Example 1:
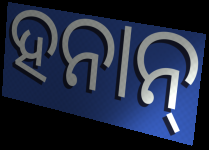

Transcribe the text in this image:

ହନାନ୍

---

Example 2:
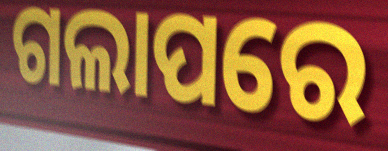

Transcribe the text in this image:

ଗଲାପରେ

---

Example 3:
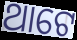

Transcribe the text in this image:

ଥାଟେ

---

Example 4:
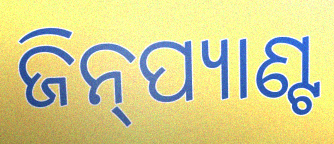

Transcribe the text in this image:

ଜିନ୍‍ପ୍ୟାଣ୍ଟ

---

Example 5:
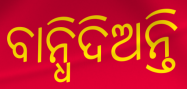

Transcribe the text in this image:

ବାନ୍ଧିଦିଅନ୍ତି